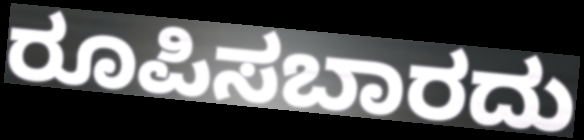
ರೂಪಿಸಬಾರದು